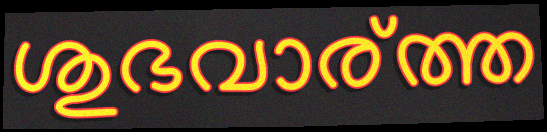
ശുഭവാര്ത്ത